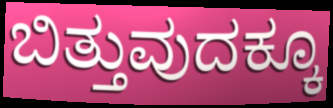
ಬಿತ್ತುವುದಕ್ಕೂ